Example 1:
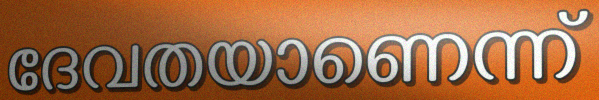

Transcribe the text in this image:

ദേവതയാണെന്ന്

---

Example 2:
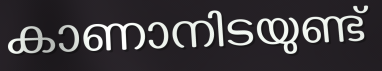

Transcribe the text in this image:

കാണാനിടയുണ്ട്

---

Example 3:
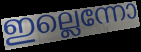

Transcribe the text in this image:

ഇല്ലെന്നോ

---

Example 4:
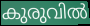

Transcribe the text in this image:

കുരുവിൽ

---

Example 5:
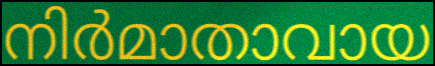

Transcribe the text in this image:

നിർമാതാവായ